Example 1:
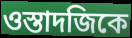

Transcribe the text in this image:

ওস্তাদজিকে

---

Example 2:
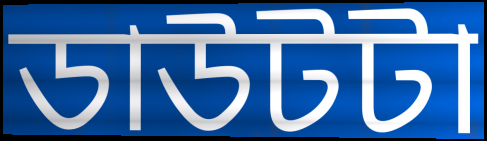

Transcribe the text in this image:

ডাউটটা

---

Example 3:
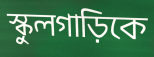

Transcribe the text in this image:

স্কুলগাড়িকে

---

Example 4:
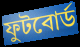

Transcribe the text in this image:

ফুটবোর্ড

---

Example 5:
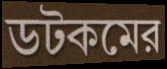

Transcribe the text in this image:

ডটকমের